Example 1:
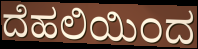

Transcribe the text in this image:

ದೆಹಲಿಯಿಂದ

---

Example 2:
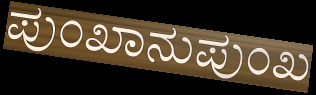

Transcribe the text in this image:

ಪುಂಖಾನುಪುಂಖ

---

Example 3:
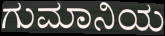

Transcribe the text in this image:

ಗುಮಾನಿಯ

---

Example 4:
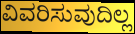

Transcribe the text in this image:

ವಿವರಿಸುವುದಿಲ್ಲ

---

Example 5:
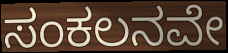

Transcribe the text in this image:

ಸಂಕಲನವೇ